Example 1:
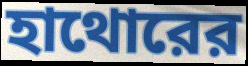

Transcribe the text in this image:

হাথোরের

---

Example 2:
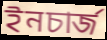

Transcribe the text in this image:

ইনচার্জ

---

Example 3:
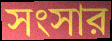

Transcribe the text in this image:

সংসার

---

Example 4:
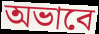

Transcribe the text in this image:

অভাবে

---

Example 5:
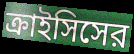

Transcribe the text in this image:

ক্রাইসিসের